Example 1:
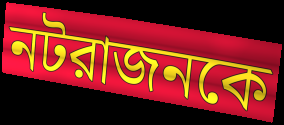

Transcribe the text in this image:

নটরাজনকে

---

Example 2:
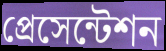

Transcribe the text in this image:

প্রেসেন্টেশন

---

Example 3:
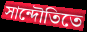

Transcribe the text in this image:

সান্দৌতিতে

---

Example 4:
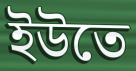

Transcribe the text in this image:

ইউতে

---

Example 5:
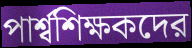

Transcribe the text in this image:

পার্শ্বশিক্ষকদের